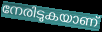
നേരിടുകയാണ്